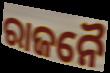
ରାଜନୈ